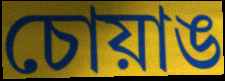
চোয়াঙ